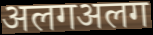
अलगअलग